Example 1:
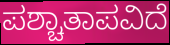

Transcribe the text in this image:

ಪಶ್ಚಾತಾಪವಿದೆ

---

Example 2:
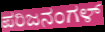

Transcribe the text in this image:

ಪರಿಜನಂಗಳ್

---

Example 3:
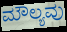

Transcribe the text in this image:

ಮೌಲ್ಯವು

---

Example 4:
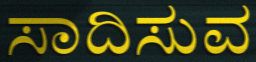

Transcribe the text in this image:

ಸಾದಿಸುವ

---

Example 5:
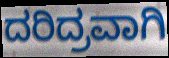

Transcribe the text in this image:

ದರಿದ್ರವಾಗಿ